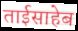
ताईसाहेब